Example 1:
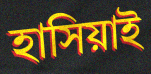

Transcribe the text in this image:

হাসিয়াই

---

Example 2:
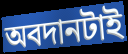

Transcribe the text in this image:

অবদানটাই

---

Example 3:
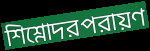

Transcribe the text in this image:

শিশ্নোদরপরায়ণ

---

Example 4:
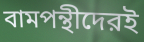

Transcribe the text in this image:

বামপন্থীদেরই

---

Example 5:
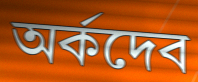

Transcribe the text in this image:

অর্কদেব